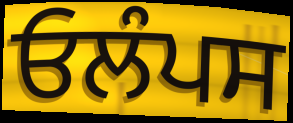
ਓਲੰਪਸ